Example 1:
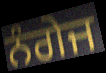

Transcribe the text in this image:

ਨੰਗੇਜ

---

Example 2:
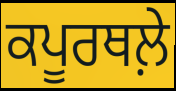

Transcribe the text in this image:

ਕਪੂਰਥਲ਼ੇ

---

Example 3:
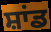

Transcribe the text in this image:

ਸ਼ਾਂਡ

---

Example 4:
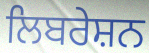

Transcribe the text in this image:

ਲਿਬਰੇਸ਼ਨ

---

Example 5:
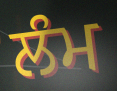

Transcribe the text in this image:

ਲੰਮ